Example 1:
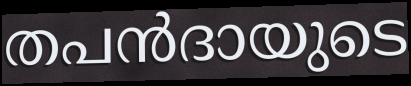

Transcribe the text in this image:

തപൻദായുടെ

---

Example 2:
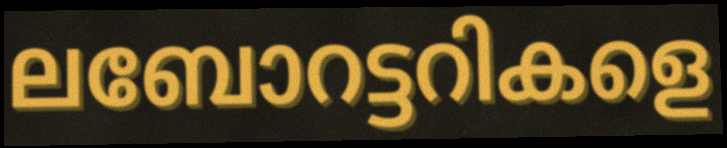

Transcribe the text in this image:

ലബോറട്ടറികളെ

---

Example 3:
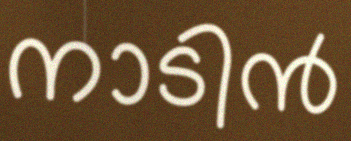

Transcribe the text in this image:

നാടിൻ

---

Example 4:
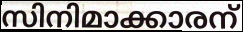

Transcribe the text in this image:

സിനിമാക്കാരന്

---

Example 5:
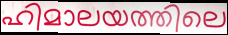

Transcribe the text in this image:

ഹിമാലയത്തിലെ